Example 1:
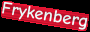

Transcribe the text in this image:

Frykenberg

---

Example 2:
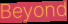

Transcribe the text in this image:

Beyond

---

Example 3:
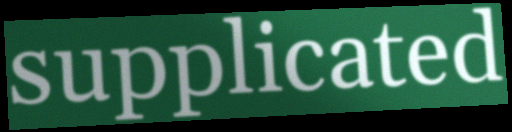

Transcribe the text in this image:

supplicated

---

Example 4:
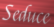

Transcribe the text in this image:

Seduce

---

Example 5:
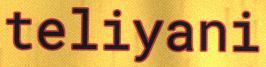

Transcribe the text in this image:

teliyani